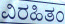
ವಿರಹಿತಂ